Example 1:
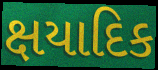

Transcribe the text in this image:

ક્ષયાદિક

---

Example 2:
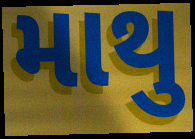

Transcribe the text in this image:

માથુ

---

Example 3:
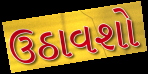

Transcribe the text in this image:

ઉઠાવશો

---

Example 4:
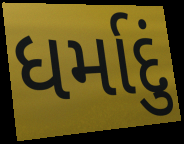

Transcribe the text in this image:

ધર્માદું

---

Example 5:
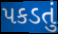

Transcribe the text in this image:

પકડતું